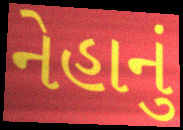
નેહાનું